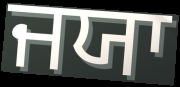
ਜਯਾ